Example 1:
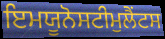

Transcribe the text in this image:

ਇਮਯੂਨੋਸਟੀਮੁਲੈਂਟਸ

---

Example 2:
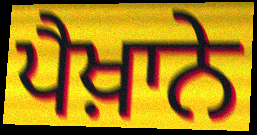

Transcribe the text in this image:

ਪੈਖ਼ਾਨੇ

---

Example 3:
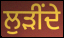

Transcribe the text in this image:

ਲੁੜੀਂਦੇ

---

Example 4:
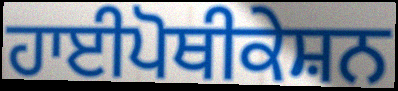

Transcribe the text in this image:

ਹਾਈਪੋਥੀਕੇਸ਼ਨ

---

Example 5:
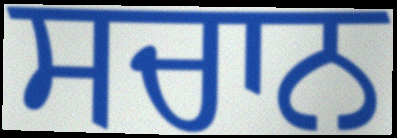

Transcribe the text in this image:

ਸਚਾਨ